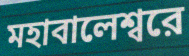
মহাবালেশ্বরে